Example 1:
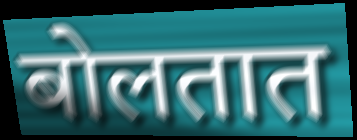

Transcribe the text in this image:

बोलतात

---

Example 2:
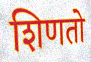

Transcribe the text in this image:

शिणतो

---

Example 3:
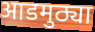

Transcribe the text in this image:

आडमुठ्या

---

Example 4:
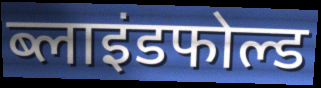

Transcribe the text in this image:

ब्लाइंडफोल्ड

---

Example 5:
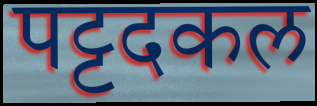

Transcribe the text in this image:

पट्टदकल